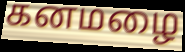
கனமழை